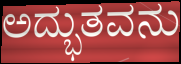
ಅದ್ಭುತವನು